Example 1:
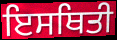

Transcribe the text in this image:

ਇਸਥਿਤੀ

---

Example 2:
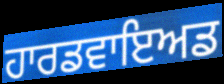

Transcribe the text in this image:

ਹਾਰਡਵਾਇਅਡ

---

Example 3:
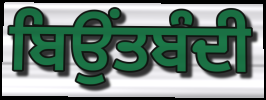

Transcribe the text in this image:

ਬਿਉਂਤਬੰਦੀ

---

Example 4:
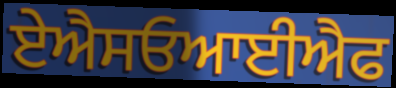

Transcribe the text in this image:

ਏਐਸਓਆਈਐਫ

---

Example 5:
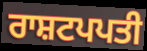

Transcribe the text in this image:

ਰਾਸ਼ਟਪਪਤੀ